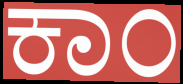
ಕಾಂ